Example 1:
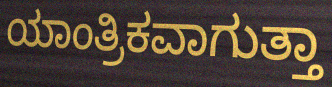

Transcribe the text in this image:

ಯಾಂತ್ರಿಕವಾಗುತ್ತಾ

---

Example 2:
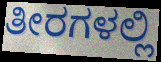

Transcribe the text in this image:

ತೀರಗಳಲ್ಲಿ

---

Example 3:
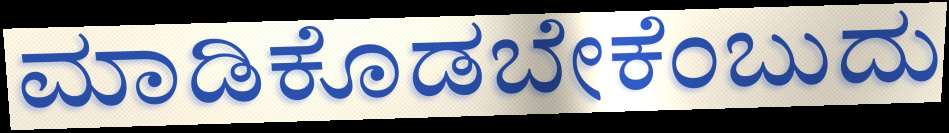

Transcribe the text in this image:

ಮಾಡಿಕೊಡಬೇಕೆಂಬುದು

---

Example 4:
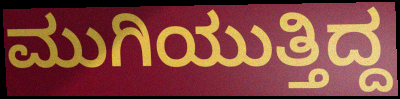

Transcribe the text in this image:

ಮುಗಿಯುತ್ತಿದ್ದ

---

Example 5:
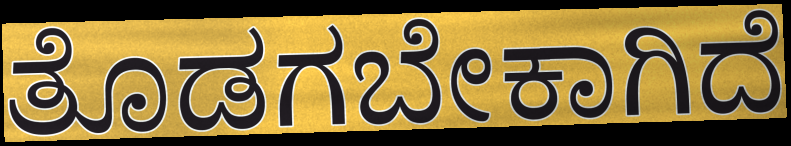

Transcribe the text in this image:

ತೊಡಗಬೇಕಾಗಿದೆ